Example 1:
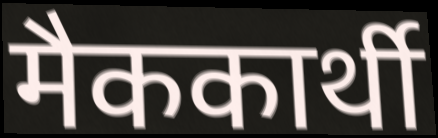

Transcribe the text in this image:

मैककार्थी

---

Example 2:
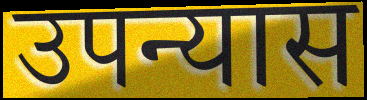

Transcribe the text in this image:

उपन्यास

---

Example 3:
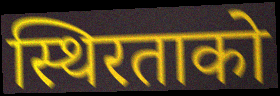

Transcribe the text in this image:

स्थिरताको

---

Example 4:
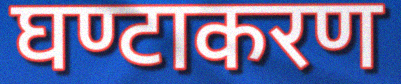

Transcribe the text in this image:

घण्टाकरण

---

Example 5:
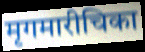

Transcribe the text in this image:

मृगमारीचिका